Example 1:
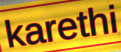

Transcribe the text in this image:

karethi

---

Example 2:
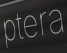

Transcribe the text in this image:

ptera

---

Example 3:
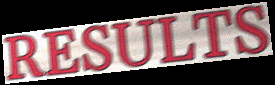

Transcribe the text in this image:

RESULTS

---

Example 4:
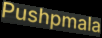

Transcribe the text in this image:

Pushpmala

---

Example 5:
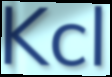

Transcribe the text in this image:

Kcl